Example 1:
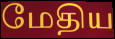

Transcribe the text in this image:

மேதிய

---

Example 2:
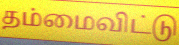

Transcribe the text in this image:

தம்மைவிட்டு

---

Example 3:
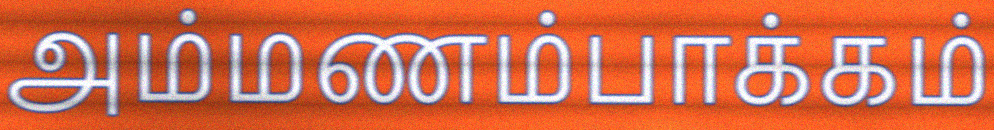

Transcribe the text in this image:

அம்மணம்பாக்கம்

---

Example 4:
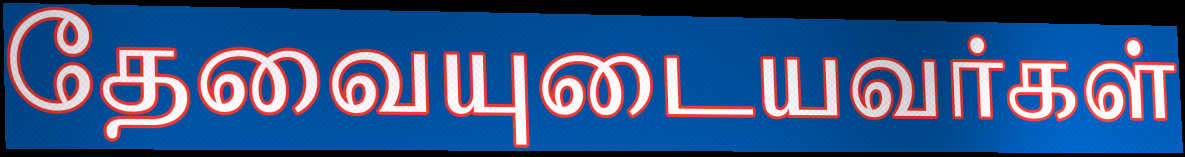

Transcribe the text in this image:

தேவையுடையவர்கள்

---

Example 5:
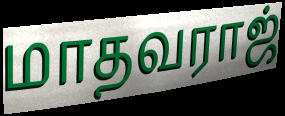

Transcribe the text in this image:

மாதவராஜ்